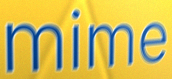
mime